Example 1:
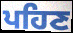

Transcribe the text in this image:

ਪਹਿਣ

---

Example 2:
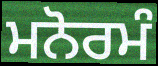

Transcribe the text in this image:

ਮਨੋਰਮੰ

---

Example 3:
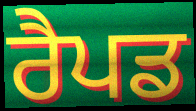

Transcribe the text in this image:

ਰੈਪਡ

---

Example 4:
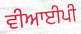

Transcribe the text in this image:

ਵੀਆਈਪੀ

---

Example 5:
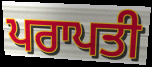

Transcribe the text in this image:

ਪਰਾਪਤੀ